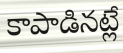
కాపాడినట్లే